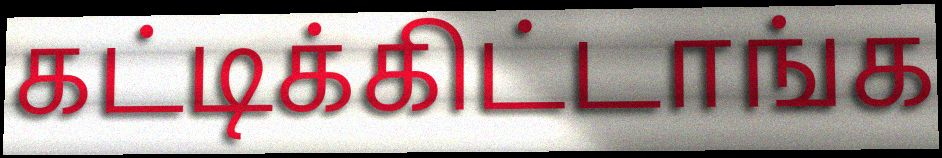
கட்டிக்கிட்டாங்க